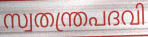
സ്വതന്ത്രപദവി